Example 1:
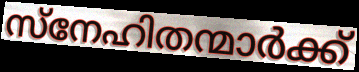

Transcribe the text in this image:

സ്നേഹിതന്മാർക്ക്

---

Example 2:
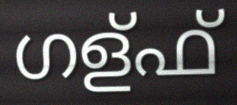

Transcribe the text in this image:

ഗള്ഫ്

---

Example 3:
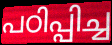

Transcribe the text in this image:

പഠിപ്പിച്ച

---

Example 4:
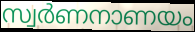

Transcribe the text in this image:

സ്വർണനാണയം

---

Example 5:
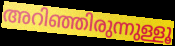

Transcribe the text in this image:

അറിഞ്ഞിരുന്നുള്ളൂ